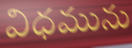
విధమును